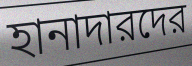
হানাদারদের